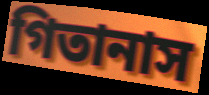
গিতানাস